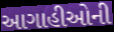
આગાહીઓની